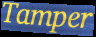
Tamper